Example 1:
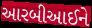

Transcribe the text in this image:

આરબીઆઈને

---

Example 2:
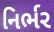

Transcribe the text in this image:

નિર્ભર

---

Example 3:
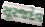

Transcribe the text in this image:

સૂરજદેવ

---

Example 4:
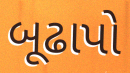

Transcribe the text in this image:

બૂઢાપો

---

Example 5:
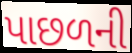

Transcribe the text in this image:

પાછળની